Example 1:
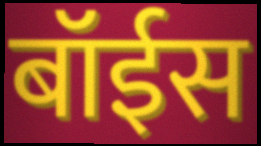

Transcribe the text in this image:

बॉईस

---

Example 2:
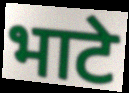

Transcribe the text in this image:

भाटे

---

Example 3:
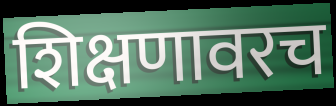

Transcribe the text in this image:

शिक्षणावरच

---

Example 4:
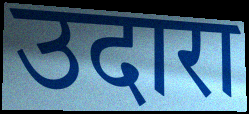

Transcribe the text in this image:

उदारा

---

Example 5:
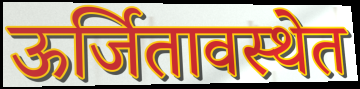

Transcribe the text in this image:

ऊर्जितावस्थेत